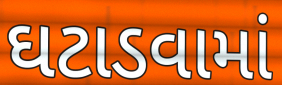
ઘટાડવામાં